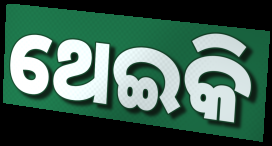
ଥେଇକି